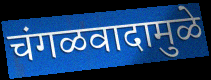
चंगळवादामुळे